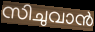
സിചുവാൻ